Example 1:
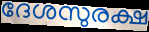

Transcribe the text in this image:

ദേശസുരക്ഷ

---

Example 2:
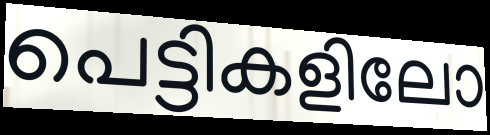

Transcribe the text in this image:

പെട്ടികളിലോ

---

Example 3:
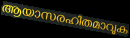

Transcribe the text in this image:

ആയാസരഹിതമാവുക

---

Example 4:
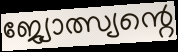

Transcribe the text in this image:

ജ്യോത്സ്യന്റെ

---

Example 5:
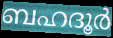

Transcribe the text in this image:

ബഹദൂർ